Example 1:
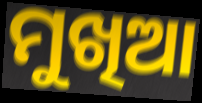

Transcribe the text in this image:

ମୁଖିଆ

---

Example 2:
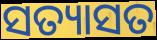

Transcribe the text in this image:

ସତ୍ୟାସତ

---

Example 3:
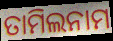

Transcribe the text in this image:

ତାମିଲନାମ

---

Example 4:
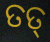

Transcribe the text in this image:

ତତ୍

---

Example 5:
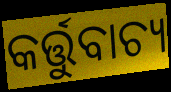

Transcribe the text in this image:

କର୍ତ୍ତୁବାଚ୍ୟ